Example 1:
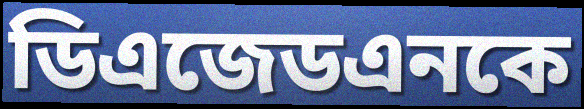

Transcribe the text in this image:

ডিএজেডএনকে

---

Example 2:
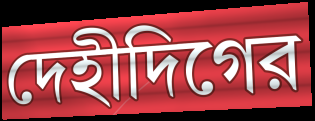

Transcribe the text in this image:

দেহীদিগের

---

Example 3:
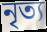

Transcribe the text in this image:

নৃত্য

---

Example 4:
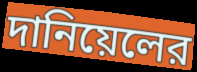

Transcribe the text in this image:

দানিয়েলের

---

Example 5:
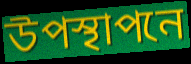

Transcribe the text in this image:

উপস্থাপনে